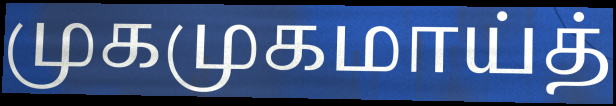
முகமுகமாய்த்